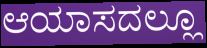
ಆಯಾಸದಲ್ಲೂ